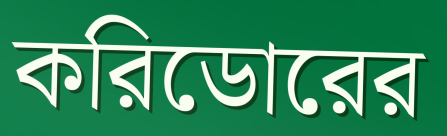
করিডোরের